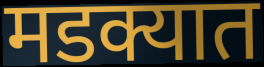
मडक्यात